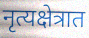
नृत्यक्षेत्रात